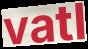
vatl